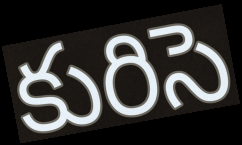
కురిసె